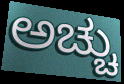
ಅಚ್ಚು